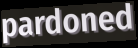
pardoned